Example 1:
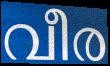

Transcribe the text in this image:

വീര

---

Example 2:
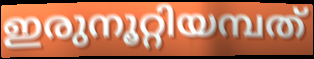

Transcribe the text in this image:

ഇരുനൂറ്റിയമ്പത്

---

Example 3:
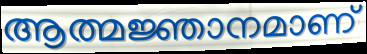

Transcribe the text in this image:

ആത്മജ്ഞാനമാണ്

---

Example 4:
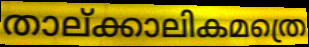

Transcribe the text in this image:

താല്ക്കാലികമത്രെ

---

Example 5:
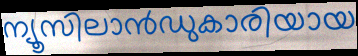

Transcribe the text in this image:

ന്യൂസിലാൻഡുകാരിയായ